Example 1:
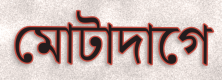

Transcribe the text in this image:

মোটাদাগে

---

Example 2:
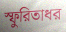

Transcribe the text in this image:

স্ফুরিতাধর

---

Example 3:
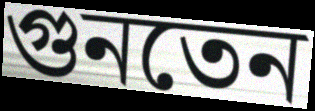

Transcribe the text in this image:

গুনতেন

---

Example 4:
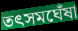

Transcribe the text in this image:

তৎসমঘেঁষা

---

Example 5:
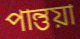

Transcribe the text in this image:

পান্তুয়া